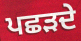
ਪਛੜਦੇ